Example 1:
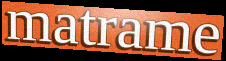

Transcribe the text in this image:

matrame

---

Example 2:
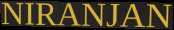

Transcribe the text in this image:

NIRANJAN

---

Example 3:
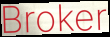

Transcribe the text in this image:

Broker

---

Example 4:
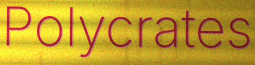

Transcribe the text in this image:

Polycrates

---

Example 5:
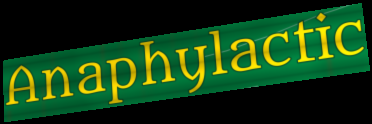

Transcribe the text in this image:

Anaphylactic